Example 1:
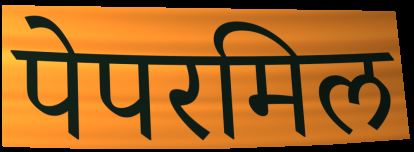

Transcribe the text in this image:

पेपरमिल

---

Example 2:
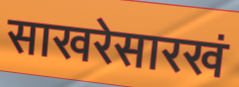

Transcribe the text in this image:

साखरेसारखं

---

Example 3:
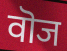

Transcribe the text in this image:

वॊज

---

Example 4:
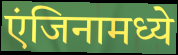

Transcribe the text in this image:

एंजिनामध्ये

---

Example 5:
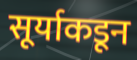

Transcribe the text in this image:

सूर्याकडून